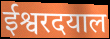
ईश्वरदयाल